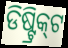
ଡିଷ୍ଟ୍ରିକ୍‌ଟ